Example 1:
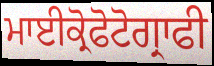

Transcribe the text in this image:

ਮਾਈਕ੍ਰੋਫੋਟੋਗ੍ਰਾਫੀ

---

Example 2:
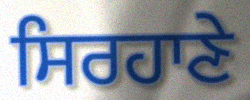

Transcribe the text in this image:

ਸਿਰਹਾਣੇ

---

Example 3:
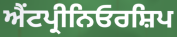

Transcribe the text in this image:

ਐਂਟਪ੍ਰੀਨਿਓਰਸ਼ਿਪ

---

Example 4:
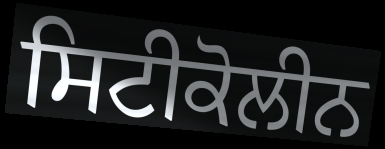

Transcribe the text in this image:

ਸਿਟੀਕੋਲੀਨ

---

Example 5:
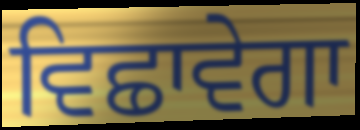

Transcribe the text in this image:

ਵਿਛਾਵੇਗਾ